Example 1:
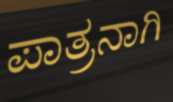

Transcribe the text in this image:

ಪಾತ್ರನಾಗಿ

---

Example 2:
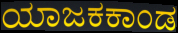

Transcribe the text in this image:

ಯಾಜಕಕಾಂಡ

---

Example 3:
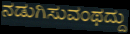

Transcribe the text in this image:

ನಡುಗಿಸುವಂಥದ್ದು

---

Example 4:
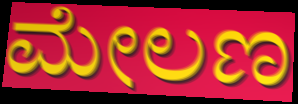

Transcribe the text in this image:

ಮೇಲಣ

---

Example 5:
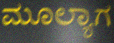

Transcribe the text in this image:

ಮೂಲ್ಯಾಗ